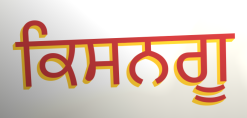
ਕਿਸਨਗੂ